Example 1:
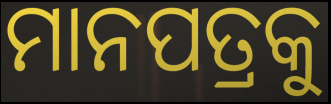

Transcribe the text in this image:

ମାନପତ୍ରକୁ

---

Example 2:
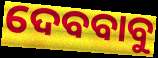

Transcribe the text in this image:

ଦେବବାବୁ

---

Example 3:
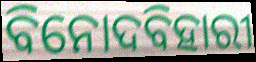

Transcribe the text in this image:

ବିନୋଦବିହାରୀ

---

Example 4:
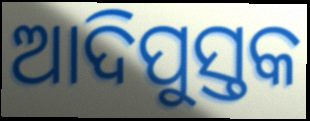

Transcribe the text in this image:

ଆଦିପୁସ୍ତକ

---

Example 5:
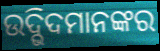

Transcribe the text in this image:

ଉଦ୍ଭିଦମାନଙ୍କର